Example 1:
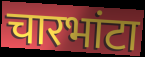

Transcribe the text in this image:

चारभांटा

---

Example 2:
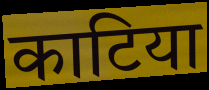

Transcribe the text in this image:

काटिया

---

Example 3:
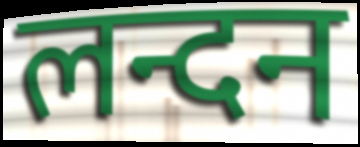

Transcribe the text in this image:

लन्दन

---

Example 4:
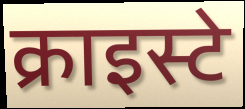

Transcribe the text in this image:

क्राइस्टे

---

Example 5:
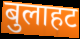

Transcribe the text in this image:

बुलाहट